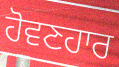
ਹੋਵਣਹਾਰ